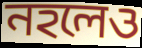
নহলেও